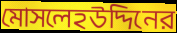
মোসলেহউদ্দিনের